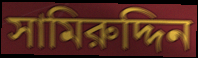
সামিরুদ্দিন